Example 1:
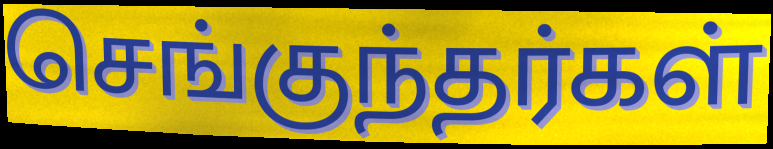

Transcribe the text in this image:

செங்குந்தர்கள்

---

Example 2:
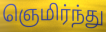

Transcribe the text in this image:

ஞெமிர்ந்து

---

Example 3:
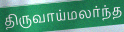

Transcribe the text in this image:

திருவாய்மலர்ந்த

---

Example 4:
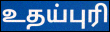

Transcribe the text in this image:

உதய்புரி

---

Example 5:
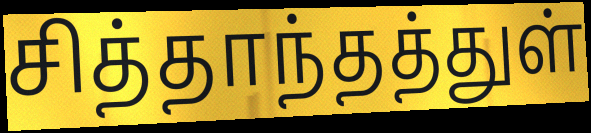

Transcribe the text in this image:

சித்தாந்தத்துள்